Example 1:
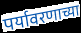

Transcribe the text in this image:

पर्यावरणाच्या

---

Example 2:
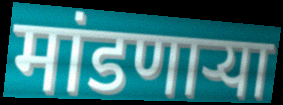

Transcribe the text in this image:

मांडणार्‍या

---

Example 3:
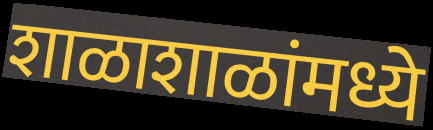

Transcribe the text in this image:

शाळाशाळांमध्ये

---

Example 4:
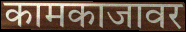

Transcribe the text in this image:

कामकाजावर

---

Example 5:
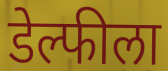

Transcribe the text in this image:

डेल्फीला